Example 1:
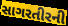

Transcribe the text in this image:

સાગરતીરની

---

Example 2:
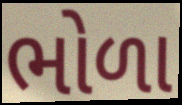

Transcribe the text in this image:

ભોળા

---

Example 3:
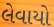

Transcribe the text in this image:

લેવાયો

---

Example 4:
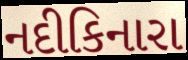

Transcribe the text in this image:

નદીકિનારા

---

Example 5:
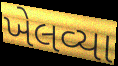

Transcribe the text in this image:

ખેલવ્યા